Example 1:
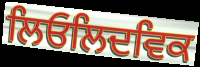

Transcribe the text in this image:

ਲਿਓਲਿਦਵਿਕ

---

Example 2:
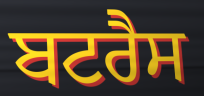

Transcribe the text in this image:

ਬਟਰੈਸ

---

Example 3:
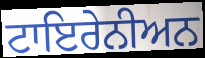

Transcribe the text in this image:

ਟਾਇਰੇਨੀਅਨ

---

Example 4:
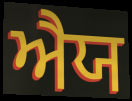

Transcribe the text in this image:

ਐਯ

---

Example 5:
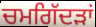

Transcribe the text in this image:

ਚਮਗਿੱਦੜਾਂ